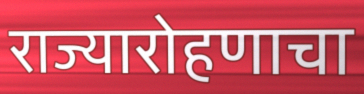
राज्यारोहणाचा